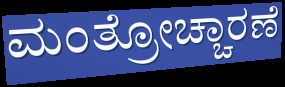
ಮಂತ್ರೋಚ್ಚಾರಣೆ